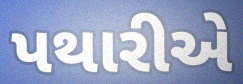
પથારીએ